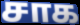
சாக